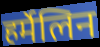
हर्मेलिन